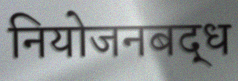
नियोजनबद्ध